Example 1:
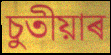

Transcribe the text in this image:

চুতীয়াৰ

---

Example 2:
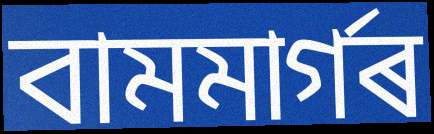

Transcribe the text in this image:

বামমাৰ্গৰ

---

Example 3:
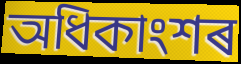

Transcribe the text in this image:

অধিকাংশৰ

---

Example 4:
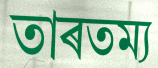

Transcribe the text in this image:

তাৰতম্য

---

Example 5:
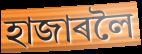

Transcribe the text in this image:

হাজাৰলৈ